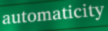
automaticity